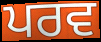
ਪਰਵ